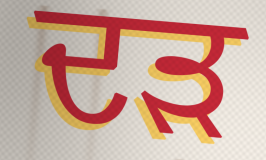
ਦੜ